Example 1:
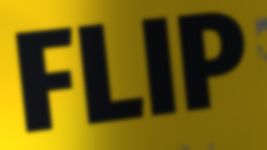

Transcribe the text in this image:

FLIP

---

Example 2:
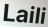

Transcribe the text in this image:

Laili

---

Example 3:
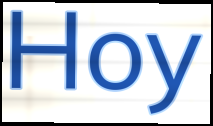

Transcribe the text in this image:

Hoy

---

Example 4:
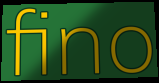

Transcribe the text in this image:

fino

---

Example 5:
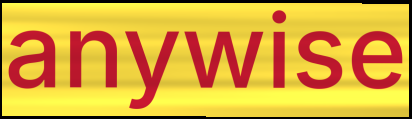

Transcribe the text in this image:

anywise